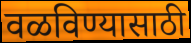
वळविण्यासाठी